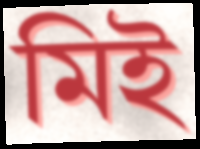
মিই